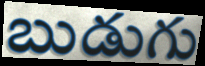
బుడుగు